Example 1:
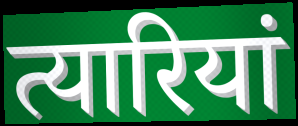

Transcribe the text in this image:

त्यारियां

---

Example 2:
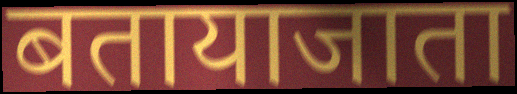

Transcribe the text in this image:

बतायाजाता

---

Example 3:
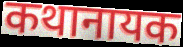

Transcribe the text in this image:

कथानायक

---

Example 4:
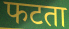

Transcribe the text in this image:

फटता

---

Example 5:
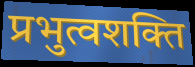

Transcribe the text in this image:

प्रभुत्वशक्ति